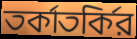
তর্কাতর্কির